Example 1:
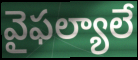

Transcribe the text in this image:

వైఫల్యాలే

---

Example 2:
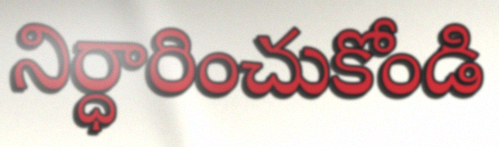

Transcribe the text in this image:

నిర్ధారించుకోండి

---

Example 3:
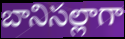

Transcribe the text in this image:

బానిసల్లాగా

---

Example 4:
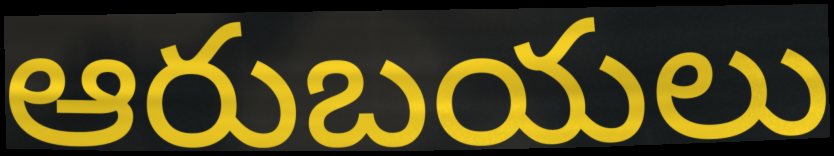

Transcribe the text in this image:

ఆరుబయలు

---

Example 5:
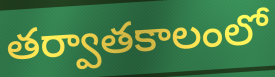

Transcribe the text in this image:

తర్వాతకాలంలో